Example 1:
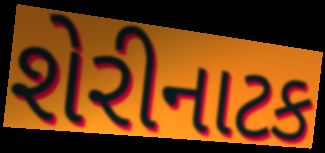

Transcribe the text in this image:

શેરીનાટક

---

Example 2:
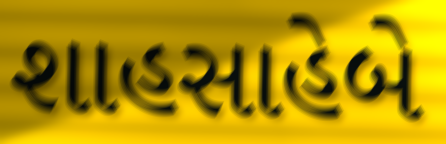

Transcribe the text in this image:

શાહસાહેબે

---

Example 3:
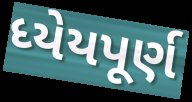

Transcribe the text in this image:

ધ્યેયપૂર્ણ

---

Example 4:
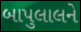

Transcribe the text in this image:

બાપુલાલને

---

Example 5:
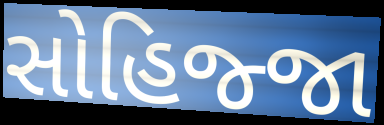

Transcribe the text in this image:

સોહિજ્જા